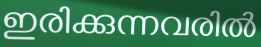
ഇരിക്കുന്നവരിൽ